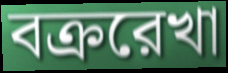
বক্ররেখা